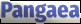
Pangaea